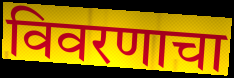
विवरणाचा